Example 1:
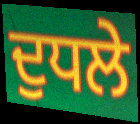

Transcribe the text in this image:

ਦੁਧਲੇ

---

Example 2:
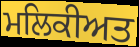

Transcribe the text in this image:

ਮਲਿਕੀਅਤ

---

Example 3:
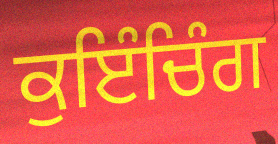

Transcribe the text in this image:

ਕੁਇੰਚਿੰਗ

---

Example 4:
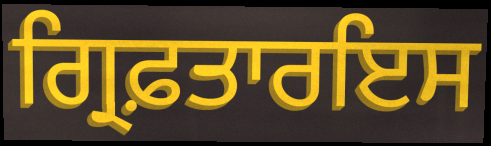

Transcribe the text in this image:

ਗ੍ਰਿਫ਼ਤਾਰਇਸ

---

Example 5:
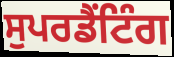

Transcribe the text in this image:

ਸੁਪਰਡੈਂਟਿੰਗ